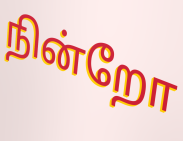
நின்றோ